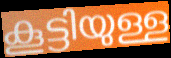
കൂട്ടിയുള്ള